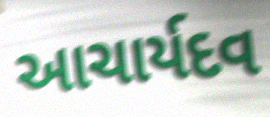
આચાર્યદવ